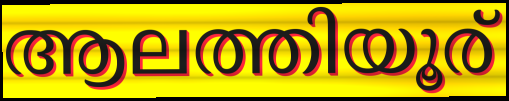
ആലത്തിയൂര്